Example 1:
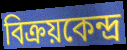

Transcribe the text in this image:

বিক্রয়কেন্দ্র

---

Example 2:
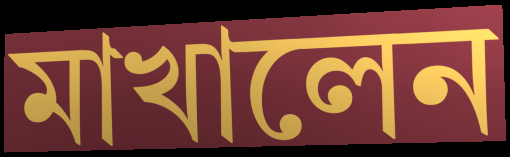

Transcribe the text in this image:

মাখালেন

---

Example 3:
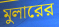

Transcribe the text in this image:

মুলারের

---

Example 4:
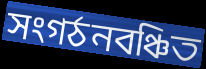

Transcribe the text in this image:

সংগঠনবঞ্চিত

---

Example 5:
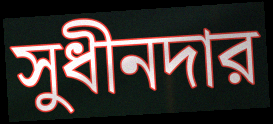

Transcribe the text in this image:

সুধীনদার